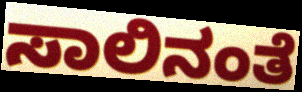
ಸಾಲಿನಂತೆ